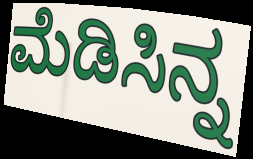
ಮೆಡಿಸಿನ್ನ